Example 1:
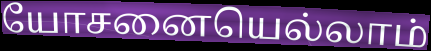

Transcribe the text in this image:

யோசனையெல்லாம்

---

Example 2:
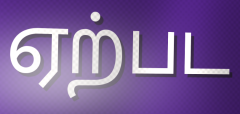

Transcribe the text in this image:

ஏற்பட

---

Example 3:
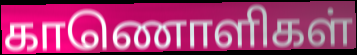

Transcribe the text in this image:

காணொளிகள்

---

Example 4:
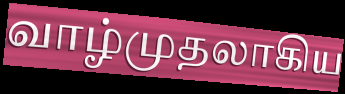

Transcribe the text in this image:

வாழ்முதலாகிய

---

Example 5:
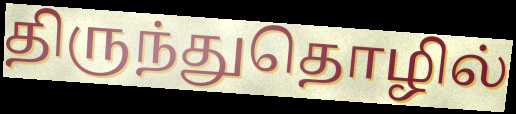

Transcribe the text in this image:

திருந்துதொழில்